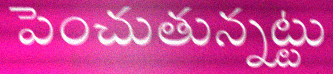
పెంచుతున్నట్టు